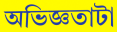
অভিজ্ঞতাটা